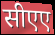
सीएए